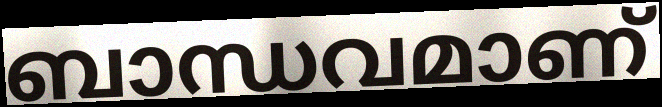
ബാന്ധവമാണ്